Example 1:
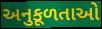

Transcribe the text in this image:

અનુકૂળતાઓ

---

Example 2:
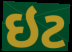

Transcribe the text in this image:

ઇટ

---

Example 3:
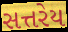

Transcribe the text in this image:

સત્તરેય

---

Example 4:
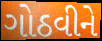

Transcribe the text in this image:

ગોઠવીને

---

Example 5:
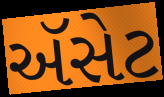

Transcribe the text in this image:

ઍસેટ